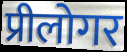
प्रीलोगर